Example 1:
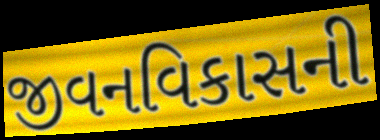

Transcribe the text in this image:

જીવનવિકાસની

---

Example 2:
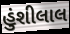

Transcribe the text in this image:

હુંશીલાલ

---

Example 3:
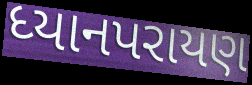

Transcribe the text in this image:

ધ્યાનપરાયણ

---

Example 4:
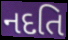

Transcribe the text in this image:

નદતિ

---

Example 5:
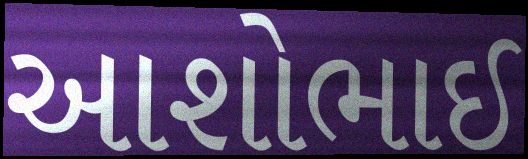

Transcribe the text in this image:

આશોભાઈ